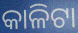
କାଳିଟା